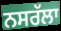
ਨਸਰੱਲਾ